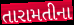
તારામતીના